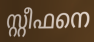
സ്റ്റീഫനെ